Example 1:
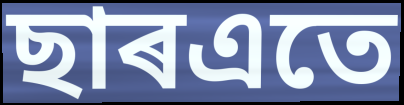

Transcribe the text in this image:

ছাৰএতে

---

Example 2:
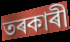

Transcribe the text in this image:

তৰকাৰী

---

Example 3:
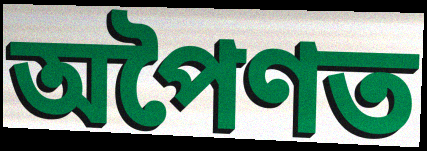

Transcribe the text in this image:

অপৈণত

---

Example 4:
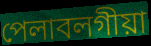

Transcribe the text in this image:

পেলাবলগীয়া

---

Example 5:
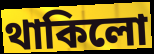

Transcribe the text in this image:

থাকিলো